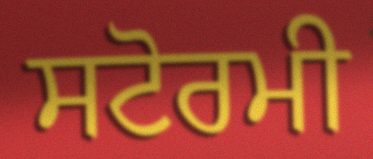
ਸਟੋਰਮੀ